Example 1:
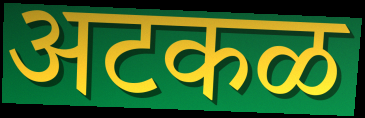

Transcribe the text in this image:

अटकळ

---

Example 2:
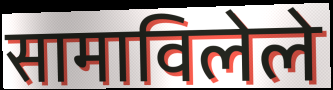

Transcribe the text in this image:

सामाविलेले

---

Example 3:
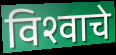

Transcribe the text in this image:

विश्वाचे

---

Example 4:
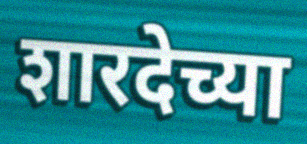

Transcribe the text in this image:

शारदेच्या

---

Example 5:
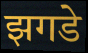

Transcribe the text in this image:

झगडे